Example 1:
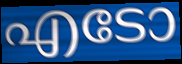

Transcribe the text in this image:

എടോ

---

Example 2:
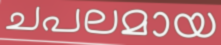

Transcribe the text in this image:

ചപലമായ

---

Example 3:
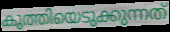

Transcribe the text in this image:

കുത്തിയെടുക്കുന്നത്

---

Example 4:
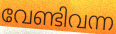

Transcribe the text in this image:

വേണ്ടിവന്ന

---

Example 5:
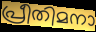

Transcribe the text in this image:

പ്രീതിമനാ